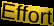
Effort